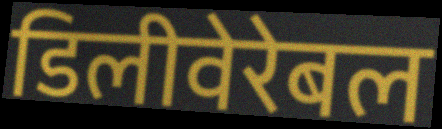
डिलीवेरेबल